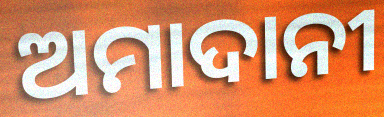
ଅମାଦାନୀ